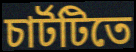
চার্টটিতে